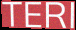
TERI